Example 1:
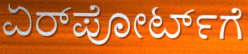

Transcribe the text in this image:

ಏರ್‌ಪೋರ್ಟ್‌ಗೆ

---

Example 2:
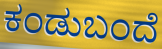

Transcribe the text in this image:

ಕಂಡುಬಂದೆ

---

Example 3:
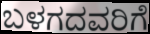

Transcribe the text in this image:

ಬಳಗದವರಿಗೆ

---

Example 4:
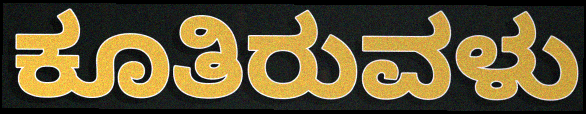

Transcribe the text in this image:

ಕೂತಿರುವಳು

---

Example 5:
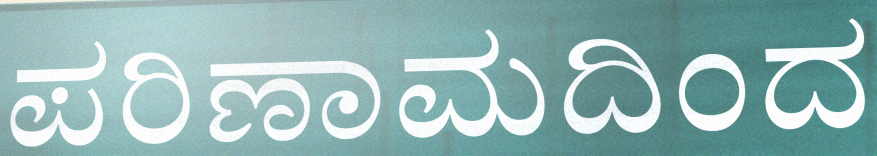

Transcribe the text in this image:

ಪರಿಣಾಮದಿಂದ